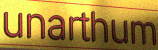
unarthum